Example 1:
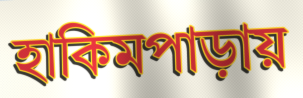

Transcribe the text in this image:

হাকিমপাড়ায়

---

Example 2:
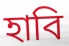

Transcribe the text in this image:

হাবি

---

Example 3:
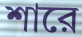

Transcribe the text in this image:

শারে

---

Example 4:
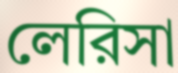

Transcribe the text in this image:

লেরিসা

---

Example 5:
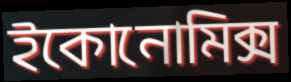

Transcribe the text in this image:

ইকোনোমিক্স